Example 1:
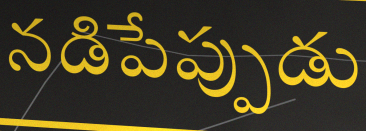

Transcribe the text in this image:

నడిపేప్పుడు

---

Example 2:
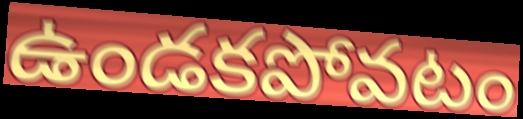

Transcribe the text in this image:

ఉండకపోవటం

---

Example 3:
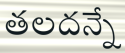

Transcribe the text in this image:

తలదన్నే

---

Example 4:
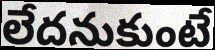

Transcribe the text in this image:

లేదనుకుంటే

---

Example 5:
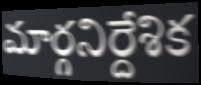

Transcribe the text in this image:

మార్గనిర్దేశిక